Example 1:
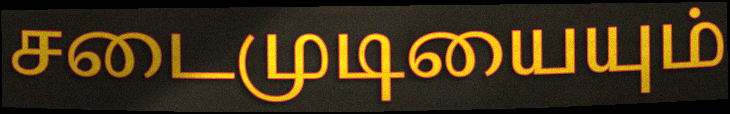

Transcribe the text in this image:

சடைமுடியையும்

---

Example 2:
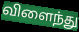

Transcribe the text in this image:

விளைந்து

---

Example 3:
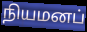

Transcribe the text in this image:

நியமனப்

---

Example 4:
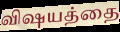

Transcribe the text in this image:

விஷயத்தை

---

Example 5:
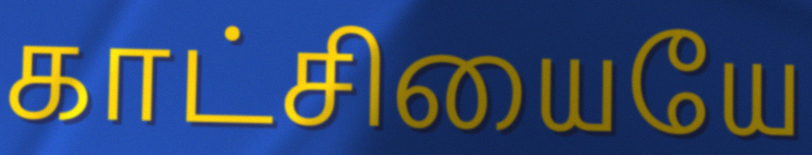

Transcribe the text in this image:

காட்சியையே